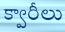
క్వారీలు